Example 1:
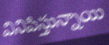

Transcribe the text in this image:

వినిపిస్తున్నాయి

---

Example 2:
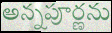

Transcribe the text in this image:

అన్నపూర్ణను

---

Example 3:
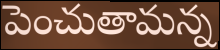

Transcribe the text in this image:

పెంచుతామన్న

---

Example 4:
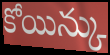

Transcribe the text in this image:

కోయిన్కు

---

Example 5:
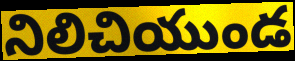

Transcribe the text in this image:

నిలిచియుండ